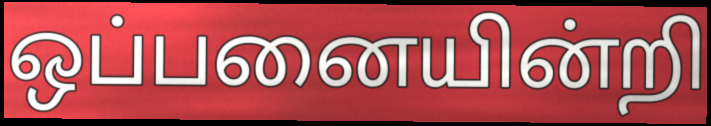
ஒப்பனையின்றி